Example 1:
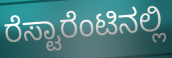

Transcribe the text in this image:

ರೆಸ್ಟಾರೆಂಟಿನಲ್ಲಿ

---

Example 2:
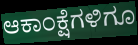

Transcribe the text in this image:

ಆಕಾಂಕ್ಷೆಗಳಿಗೂ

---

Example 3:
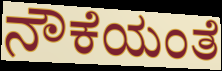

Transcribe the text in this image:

ನೌಕೆಯಂತೆ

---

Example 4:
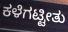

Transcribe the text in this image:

ಕಳೆಗಟ್ಟೀತು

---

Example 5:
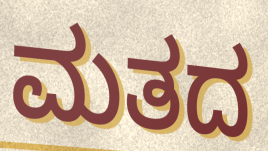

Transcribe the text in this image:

ಮತದ